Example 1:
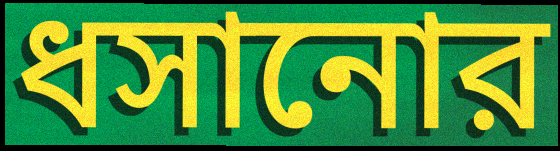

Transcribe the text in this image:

ধসানোর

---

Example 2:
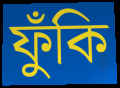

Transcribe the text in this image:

ফুঁকি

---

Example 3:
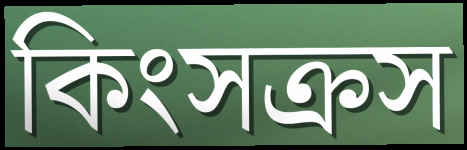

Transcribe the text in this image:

কিংসক্রস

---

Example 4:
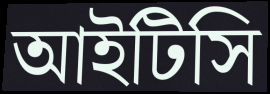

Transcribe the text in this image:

আইটিসি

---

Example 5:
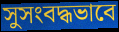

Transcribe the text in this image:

সুসংবদ্ধভাবে